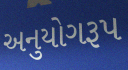
અનુયોગરૂપ